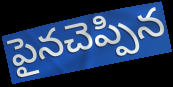
పైనచెప్పిన